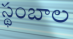
స్థంబాల